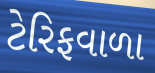
ટેરિફવાળા